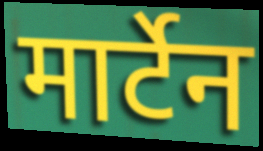
मार्टेन